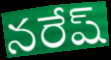
నరేష్